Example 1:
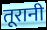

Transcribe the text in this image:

तूरानी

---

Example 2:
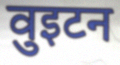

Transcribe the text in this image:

वुइटन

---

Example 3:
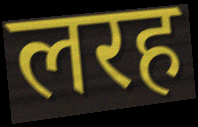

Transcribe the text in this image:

लरह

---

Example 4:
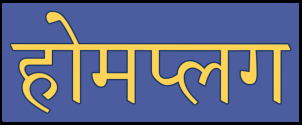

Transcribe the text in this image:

होमप्लग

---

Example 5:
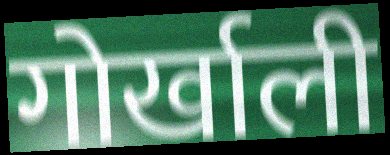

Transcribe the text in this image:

गोर्खाली